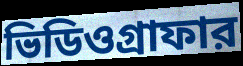
ভিডিওগ্রাফার